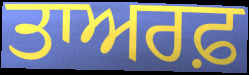
ਤਾਅਰਫ਼